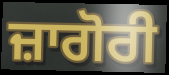
ਜ਼ਾਗੋਰੀ